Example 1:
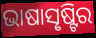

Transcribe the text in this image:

ଭାଷାସୃଷ୍ଟିର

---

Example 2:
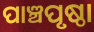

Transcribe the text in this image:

ପାଞ୍ଚପୃଷ୍ଠା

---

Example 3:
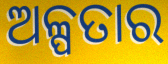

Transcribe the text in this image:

ଅଳ୍ପତାର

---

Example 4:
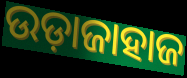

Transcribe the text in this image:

ଉଡ଼ାଜାହାଜ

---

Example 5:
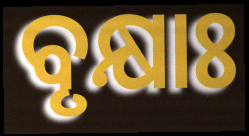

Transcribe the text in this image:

ବୃକ୍ଷାଃ